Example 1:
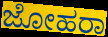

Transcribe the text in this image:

ಜೋಹರಾ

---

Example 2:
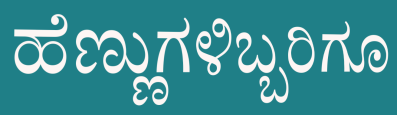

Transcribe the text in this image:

ಹೆಣ್ಣುಗಳಿಬ್ಬರಿಗೂ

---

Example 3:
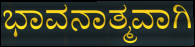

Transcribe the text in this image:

ಭಾವನಾತ್ಮವಾಗಿ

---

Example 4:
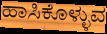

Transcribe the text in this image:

ಹಾಸಿಕೊಳ್ಳುವ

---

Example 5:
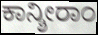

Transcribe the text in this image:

ಕಾನ್ಶೀರಾಂ